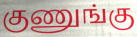
குணுங்கு